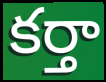
కర్తా